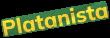
Platanista